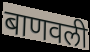
बाणवली